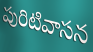
పురిటివాసన